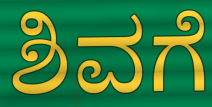
ಶಿವಗೆ